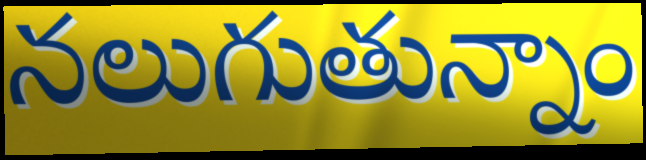
నలుగుతున్నాం